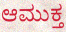
ಆಮುಕ್ತ